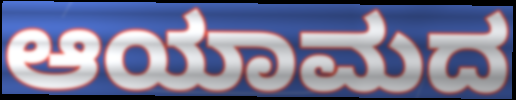
ಆಯಾಮದ